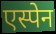
एस्पेन